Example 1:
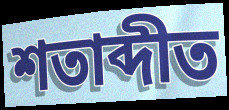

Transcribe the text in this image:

শতাব্দীত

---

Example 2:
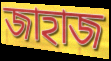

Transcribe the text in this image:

জাহাজ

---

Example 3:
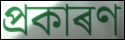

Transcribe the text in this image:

প্ৰকাৰণ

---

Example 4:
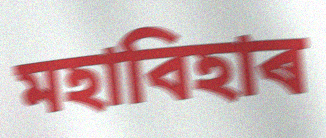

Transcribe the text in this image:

মহাবিহাৰ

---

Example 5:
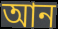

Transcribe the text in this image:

আন